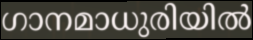
ഗാനമാധുരിയിൽ